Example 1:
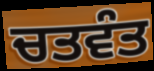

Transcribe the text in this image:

ਚਤਵੰਤ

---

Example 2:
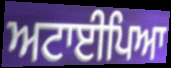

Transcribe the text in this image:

ਅਟਾਈਪਿਆ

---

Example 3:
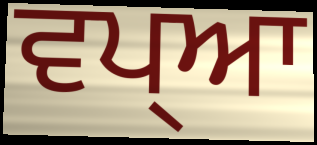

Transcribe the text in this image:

ਵਪ੍ਆ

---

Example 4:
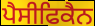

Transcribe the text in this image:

ਪੈਸੀਫਿਕੈਨ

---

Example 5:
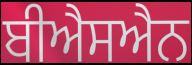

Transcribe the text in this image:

ਬੀਐਸਐਨ